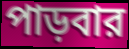
পাড়বার